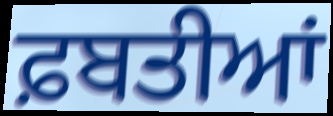
ਫ਼ਬਤੀਆਂ